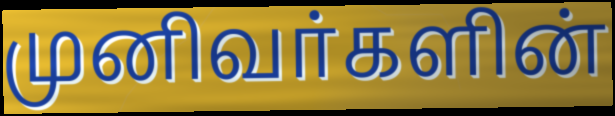
முனிவர்களின்